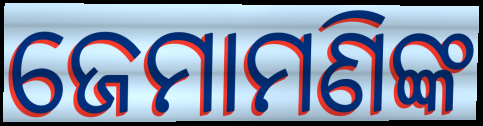
ଜେମାମଣିଙ୍କ